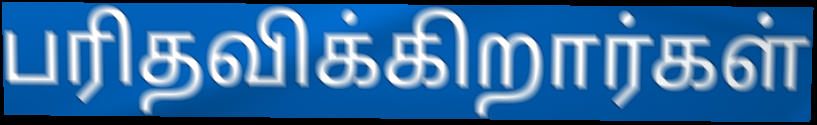
பரிதவிக்கிறார்கள்